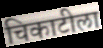
चिकाटीला